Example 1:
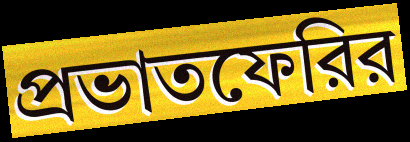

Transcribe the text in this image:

প্রভাতফেরির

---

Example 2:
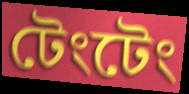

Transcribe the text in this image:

টেংটেং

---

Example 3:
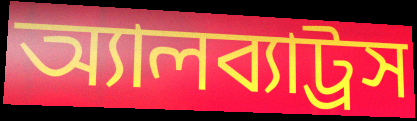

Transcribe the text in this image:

অ্যালব্যাট্রস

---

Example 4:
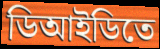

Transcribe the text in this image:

ডিআইডিতে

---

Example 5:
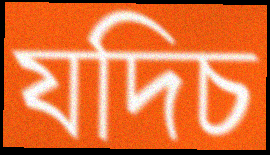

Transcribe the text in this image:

যদিচ